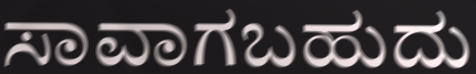
ಸಾವಾಗಬಹುದು